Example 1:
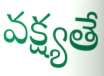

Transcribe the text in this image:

వక్ష్యతే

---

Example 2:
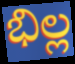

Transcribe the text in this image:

భిల్ల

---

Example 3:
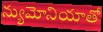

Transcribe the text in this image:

న్యుమోనియాతో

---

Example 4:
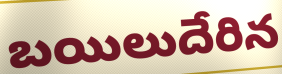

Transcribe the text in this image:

బయిలుదేరిన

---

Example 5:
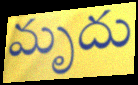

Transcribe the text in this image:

మృదు